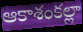
ఆకాశంకల్లా